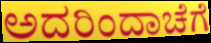
ಅದರಿಂದಾಚೆಗೆ